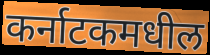
कर्नाटकमधील